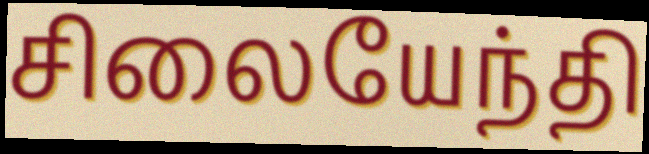
சிலையேந்தி